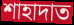
শাহাদাত